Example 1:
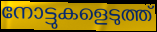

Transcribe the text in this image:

നോട്ടുകളെടുത്ത്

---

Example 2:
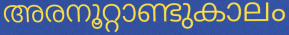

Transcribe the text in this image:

അരനൂറ്റാണ്ടുകാലം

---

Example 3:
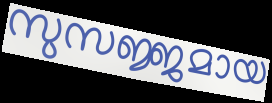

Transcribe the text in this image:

സുസജ്ജമായ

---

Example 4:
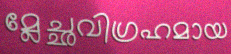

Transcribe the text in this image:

മ്ലേച്ഛവിഗ്രഹമായ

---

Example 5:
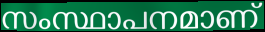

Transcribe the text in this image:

സംസ്ഥാപനമാണ്